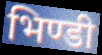
भिण्डी